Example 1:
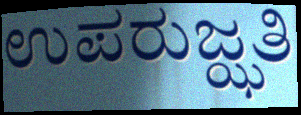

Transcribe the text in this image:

ಉಪರುಜ್ಝತಿ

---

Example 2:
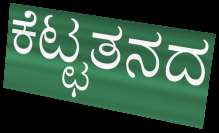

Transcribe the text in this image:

ಕೆಟ್ಟತನದ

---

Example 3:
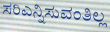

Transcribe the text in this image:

ಸರಿಎನ್ನಿಸುವಂತಿಲ್ಲ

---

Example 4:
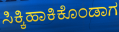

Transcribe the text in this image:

ಸಿಕ್ಕಿಹಾಕಿಕೊಂಡಾಗ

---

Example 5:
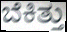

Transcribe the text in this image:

ಬೆಕಿತ್ತು